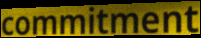
commitment